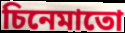
চিনেমাতো